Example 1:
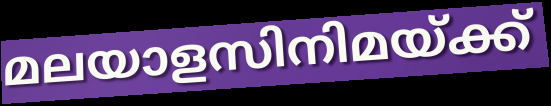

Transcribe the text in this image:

മലയാളസിനിമയ്ക്ക്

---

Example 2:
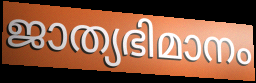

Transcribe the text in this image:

ജാത്യഭിമാനം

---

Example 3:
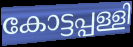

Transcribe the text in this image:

കോട്ടപ്പള്ളി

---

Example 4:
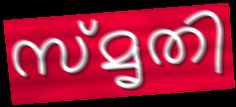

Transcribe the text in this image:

സ്മൃതി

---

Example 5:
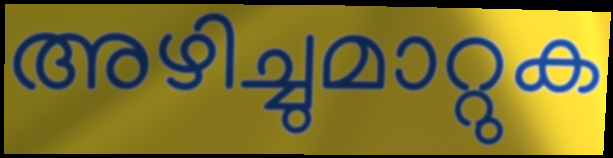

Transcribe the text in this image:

അഴിച്ചുമാറ്റുക